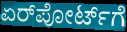
ಏರ್‌ಪೋರ್ಟ್‌ಗೆ